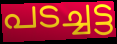
പടച്ചട്ട